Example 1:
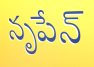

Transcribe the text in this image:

నృపేన్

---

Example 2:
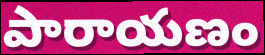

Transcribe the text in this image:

పారాయణం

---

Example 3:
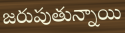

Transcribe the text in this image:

జరుపుతున్నాయి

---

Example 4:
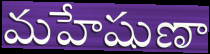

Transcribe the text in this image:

మహేషుణా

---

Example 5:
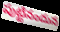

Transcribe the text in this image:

పుట్టినందున